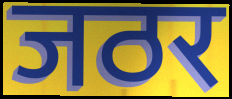
जठर